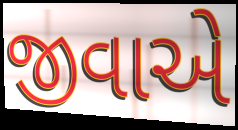
જીવાએ